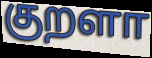
குறளா